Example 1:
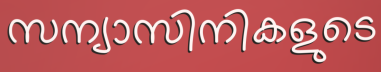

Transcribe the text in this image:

സന്യാസിനികളുടെ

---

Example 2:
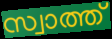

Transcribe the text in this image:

സ്വാത്ത്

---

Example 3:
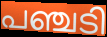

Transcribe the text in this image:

പഞ്ചടി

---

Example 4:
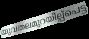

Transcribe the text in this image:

യുവതലമുറയില്പ്പെട്ട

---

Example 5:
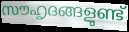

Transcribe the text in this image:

സൗഹൃദങ്ങളുണ്ട്